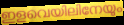
ഇളവെയിലിനേയും